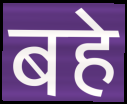
बहे